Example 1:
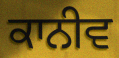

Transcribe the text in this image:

ਕਾਨੀਵ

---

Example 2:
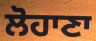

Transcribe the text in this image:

ਲੋਹਾਣਾ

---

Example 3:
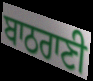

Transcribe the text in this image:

ਬਾਠਰਾਣੀ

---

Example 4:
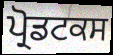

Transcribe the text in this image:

ਪ੍ਰੋਡਟਕਸ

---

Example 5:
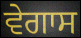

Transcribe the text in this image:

ਵੇਗਾਸ